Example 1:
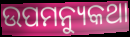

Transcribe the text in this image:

ଉପମନ୍ୟୁକଥା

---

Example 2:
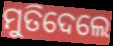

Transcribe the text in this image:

ମୁତିଦେଲେ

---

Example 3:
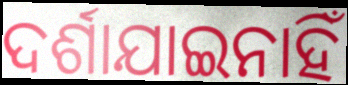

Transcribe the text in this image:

ଦର୍ଶାଯାଇନାହିଁ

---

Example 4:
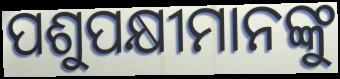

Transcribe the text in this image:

ପଶୁପକ୍ଷୀମାନଙ୍କୁ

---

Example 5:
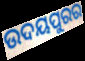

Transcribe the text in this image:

ଉଦୟପୁରର